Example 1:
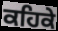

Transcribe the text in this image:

ਕਹਿਕੇ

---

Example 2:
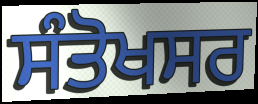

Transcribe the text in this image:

ਸੰਤੋਖਸਰ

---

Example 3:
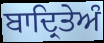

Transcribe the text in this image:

ਬਾਦ੍ਰਿਤੇਅੰ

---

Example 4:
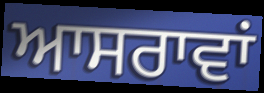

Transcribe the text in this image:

ਆਸਰਾਵਾਂ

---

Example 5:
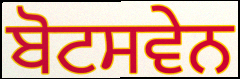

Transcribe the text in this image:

ਬੋਟਸਵੇਨ